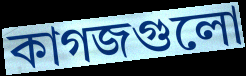
কাগজগুলো